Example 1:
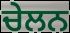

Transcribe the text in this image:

ਚੇਲਨ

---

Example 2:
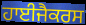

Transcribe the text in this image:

ਹਾਈਜੈਕਰਸ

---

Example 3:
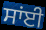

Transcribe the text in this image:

ਸਾਂਈ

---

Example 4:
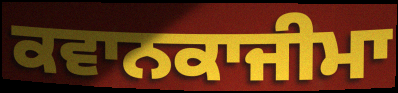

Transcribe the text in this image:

ਕਵਾਨਕਾਜੀਮਾ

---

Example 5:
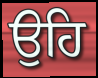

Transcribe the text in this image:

ਉਹਿ